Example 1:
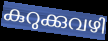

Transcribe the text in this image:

കുറുക്കുവഴി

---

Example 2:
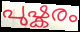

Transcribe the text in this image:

പുഷ്കരം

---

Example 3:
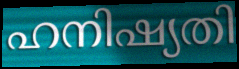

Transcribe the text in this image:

ഹനിഷ്യതി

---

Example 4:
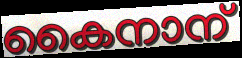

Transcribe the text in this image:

കൈനാന്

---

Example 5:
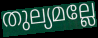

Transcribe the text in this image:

തുല്യമല്ലേ